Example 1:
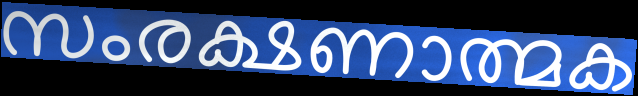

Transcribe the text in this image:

സംരക്ഷണാത്മക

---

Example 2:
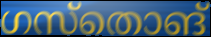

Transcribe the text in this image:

ഗസ്തൊങ്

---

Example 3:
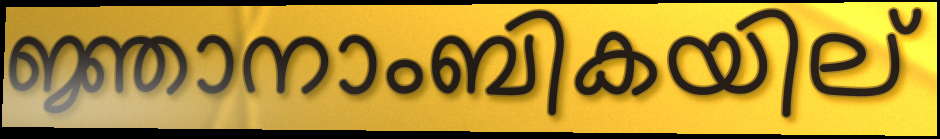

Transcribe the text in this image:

ജ്ഞാനാംബികയില്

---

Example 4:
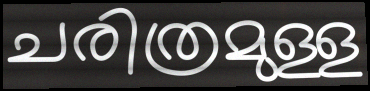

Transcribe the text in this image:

ചരിത്രമുള്ള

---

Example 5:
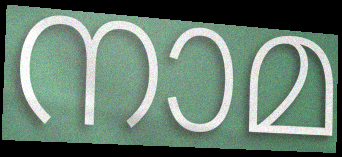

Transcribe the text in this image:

നാമ